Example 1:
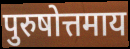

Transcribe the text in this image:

पुरुषोत्तमाय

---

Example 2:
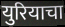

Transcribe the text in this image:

युरियाचा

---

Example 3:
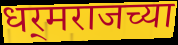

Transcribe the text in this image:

धर्मराजच्या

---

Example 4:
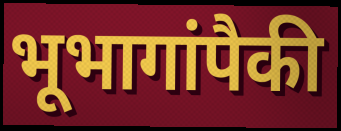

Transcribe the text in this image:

भूभागांपैकी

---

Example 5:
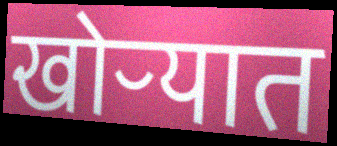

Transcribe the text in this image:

खोऱ्यात